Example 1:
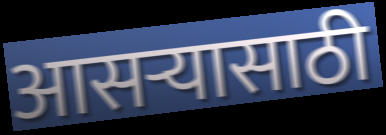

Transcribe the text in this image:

आसऱ्यासाठी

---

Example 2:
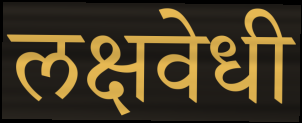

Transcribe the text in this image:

लक्षवेधी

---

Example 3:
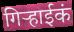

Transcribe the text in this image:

गिऱ्हाईकं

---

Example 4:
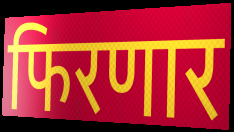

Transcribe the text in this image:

फिरणार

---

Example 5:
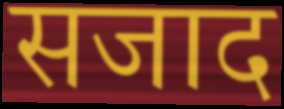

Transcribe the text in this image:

सजाद